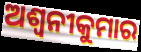
ଅଶ୍ୱନୀକୁମାର